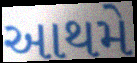
આથમે